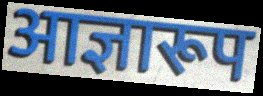
आज्ञारूप